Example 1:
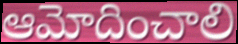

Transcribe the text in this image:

ఆమోదించాలి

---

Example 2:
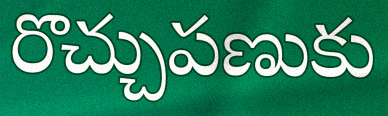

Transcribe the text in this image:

రొచ్చుపణుకు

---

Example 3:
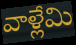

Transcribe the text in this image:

వాళ్లేమి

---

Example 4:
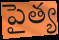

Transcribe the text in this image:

పైత్య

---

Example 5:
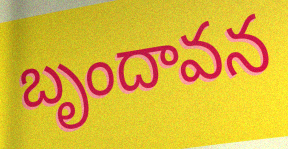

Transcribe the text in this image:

బృందావన